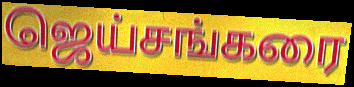
ஜெய்சங்கரை